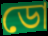
ডো